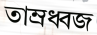
তাম্রধ্বজ